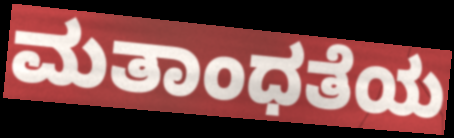
ಮತಾಂಧತೆಯ